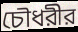
চৌধরীর